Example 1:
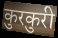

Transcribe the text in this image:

कुरकुरी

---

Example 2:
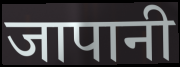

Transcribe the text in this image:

जापानी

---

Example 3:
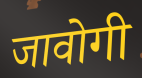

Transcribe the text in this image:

जावोगी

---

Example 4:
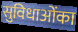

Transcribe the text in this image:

सुविधाओंका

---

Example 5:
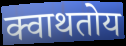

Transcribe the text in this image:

क्वाथतोय